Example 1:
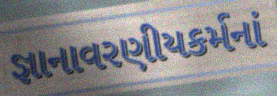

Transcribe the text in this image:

જ્ઞાનાવરણીયકર્મનાં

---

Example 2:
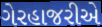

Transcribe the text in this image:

ગેરહાજરીએ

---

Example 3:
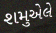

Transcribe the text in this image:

શમુએલે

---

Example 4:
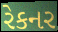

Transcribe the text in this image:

રેકનર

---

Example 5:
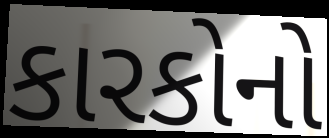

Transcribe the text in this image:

કારકોનો